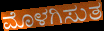
ಮೊಳಗಿಸುತ